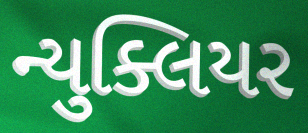
ન્યુક્લિયર